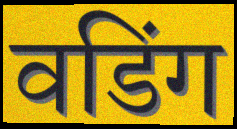
वडिंग